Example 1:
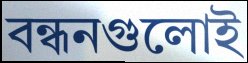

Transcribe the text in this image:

বন্ধনগুলোই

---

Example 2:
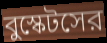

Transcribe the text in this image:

বুস্কেটসের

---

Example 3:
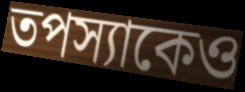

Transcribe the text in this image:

তপস্যাকেও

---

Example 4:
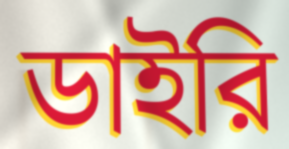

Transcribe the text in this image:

ডাইরি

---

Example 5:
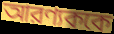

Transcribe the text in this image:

আরণ্যককে